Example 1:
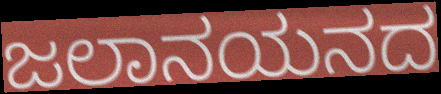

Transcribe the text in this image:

ಜಲಾನಯನದ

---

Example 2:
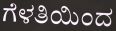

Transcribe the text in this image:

ಗೆಳತಿಯಿಂದ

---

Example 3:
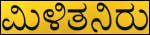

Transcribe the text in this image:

ಮಿಳಿತನಿರು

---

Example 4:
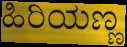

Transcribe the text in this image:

ಹಿರಿಯಣ್ಣ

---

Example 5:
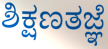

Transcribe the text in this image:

ಶಿಕ್ಷಣತಜ್ಞೆ